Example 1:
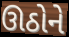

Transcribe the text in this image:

ઊઠોને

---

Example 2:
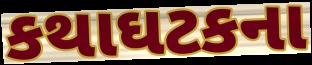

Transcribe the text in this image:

કથાઘટકના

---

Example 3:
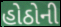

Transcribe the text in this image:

હોઠોની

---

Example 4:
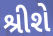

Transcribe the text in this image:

શ્રીશે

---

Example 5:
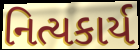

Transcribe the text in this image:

નિત્યકાર્ય